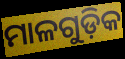
ମାଳଗୁଡ଼ିକ